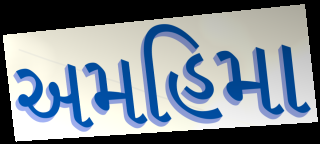
અમહિમા